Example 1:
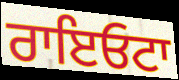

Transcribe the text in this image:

ਰਾਇਓਟਾ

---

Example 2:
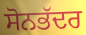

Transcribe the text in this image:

ਸੋਨਭੱਦਰ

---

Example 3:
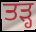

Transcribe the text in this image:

ਤੜ੍ਹ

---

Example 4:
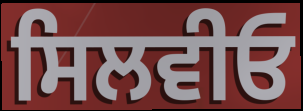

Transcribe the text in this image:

ਸਿਲਵੀਓ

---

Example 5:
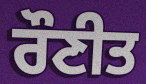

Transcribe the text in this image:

ਰੌਣੀਤ